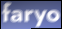
faryo